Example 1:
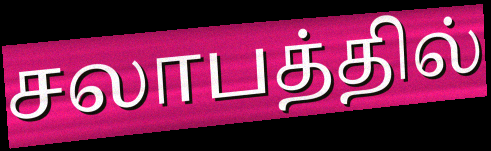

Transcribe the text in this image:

சலாபத்தில்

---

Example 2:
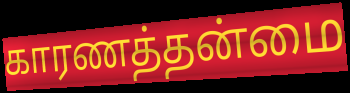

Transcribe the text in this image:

காரணத்தன்மை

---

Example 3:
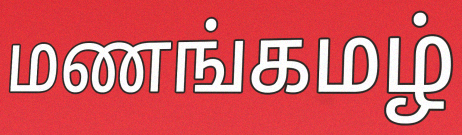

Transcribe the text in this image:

மணங்கமழ்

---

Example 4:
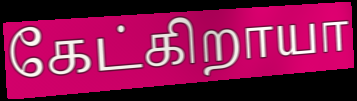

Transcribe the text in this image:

கேட்கிறாயா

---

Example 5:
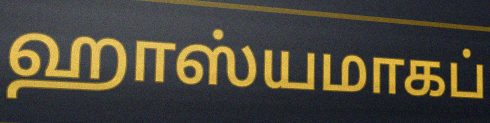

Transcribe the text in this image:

ஹாஸ்யமாகப்